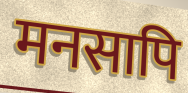
मनसापि